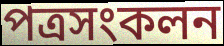
পত্রসংকলন